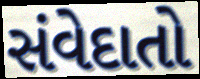
સંવેદાતો